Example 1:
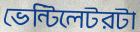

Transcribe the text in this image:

ভেন্টিলেটরটা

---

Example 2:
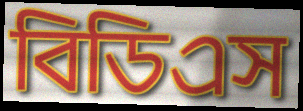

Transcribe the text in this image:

বিডিএস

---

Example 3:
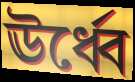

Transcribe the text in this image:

ঊর্ধ্বে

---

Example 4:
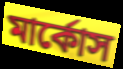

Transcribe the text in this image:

মার্কোস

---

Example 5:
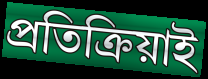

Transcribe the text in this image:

প্রতিক্রিয়াই